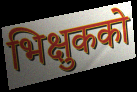
भिक्षुकको